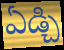
ఏడ్చి